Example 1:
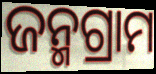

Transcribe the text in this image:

ଜନ୍ମଗ୍ରାମ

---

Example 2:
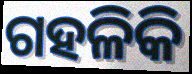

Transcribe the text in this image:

ଗହଳିକି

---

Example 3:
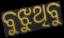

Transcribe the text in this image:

ବୁଝୁଥିବୁ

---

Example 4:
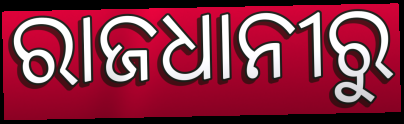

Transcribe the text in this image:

ରାଜଧାନୀରୁ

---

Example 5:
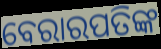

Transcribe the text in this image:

ବେରାରପତିଙ୍କ